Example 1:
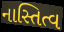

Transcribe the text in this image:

નાસ્તિત્વ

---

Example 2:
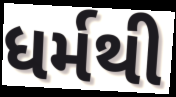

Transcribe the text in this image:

ધર્મથી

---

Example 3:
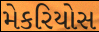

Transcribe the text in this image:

મેકરિયોસ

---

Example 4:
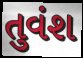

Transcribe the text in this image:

તુવંશ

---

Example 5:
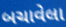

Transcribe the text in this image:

બચાવેલા